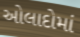
ઓલાદોમાં